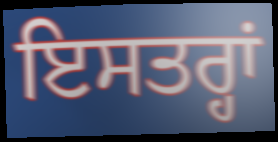
ਇਸਤਰ੍ਹਾਂ